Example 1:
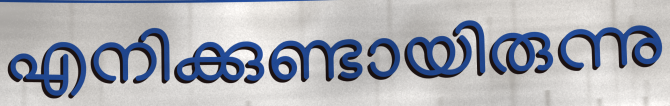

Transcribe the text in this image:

എനിക്കുണ്ടായിരുന്നു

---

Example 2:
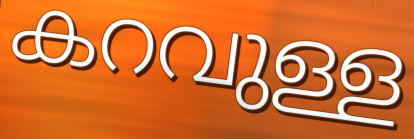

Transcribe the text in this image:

കറവുള്ള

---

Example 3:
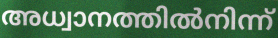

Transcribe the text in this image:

അധ്വാനത്തിൽനിന്ന്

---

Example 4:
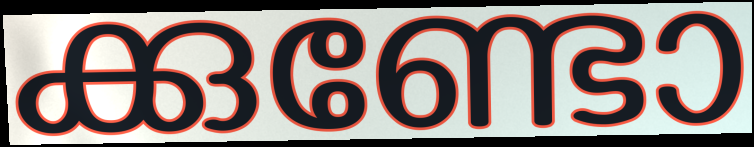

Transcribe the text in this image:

ക്കുണ്ടോ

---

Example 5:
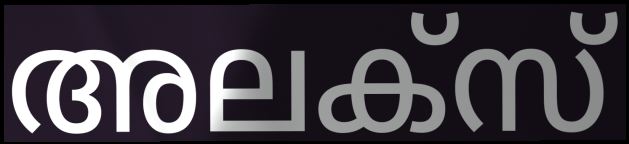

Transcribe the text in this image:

അലക്സ്